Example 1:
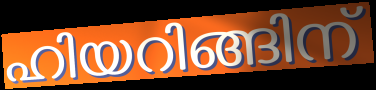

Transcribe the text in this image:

ഹിയറിങ്ങിന്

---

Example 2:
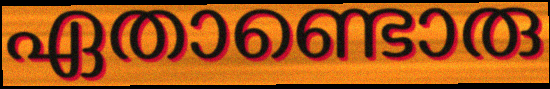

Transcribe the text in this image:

ഏതാണ്ടൊരു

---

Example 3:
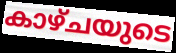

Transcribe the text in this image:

കാഴ്ചയുടെ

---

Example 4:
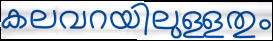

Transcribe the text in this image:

കലവറയിലുള്ളതും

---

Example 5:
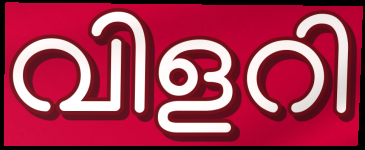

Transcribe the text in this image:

വിളറി